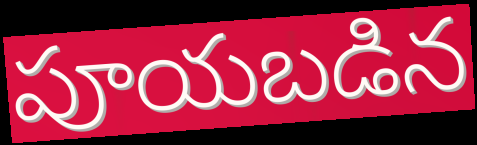
పూయబడిన